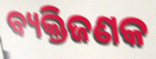
ବ୍ୟକ୍ତିଜଣକ